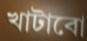
খাটাবো